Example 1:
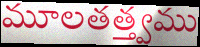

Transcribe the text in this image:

మూలతత్త్వము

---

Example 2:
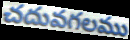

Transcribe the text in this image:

చదువగలము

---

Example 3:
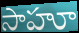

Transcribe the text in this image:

సాహూ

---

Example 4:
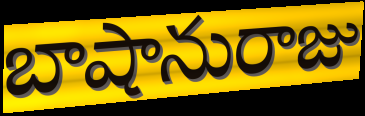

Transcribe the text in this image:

బాషానురాజు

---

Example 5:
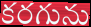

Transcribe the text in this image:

కరగును